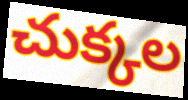
చుక్కల